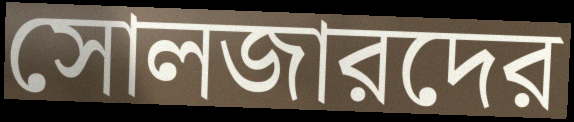
সোলজারদের